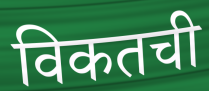
विकतची